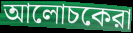
আলোচকেরা